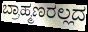
ಬ್ರಾಹ್ಮಣರಲ್ಲದ